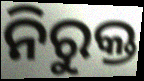
ନିରୁକ୍ତ